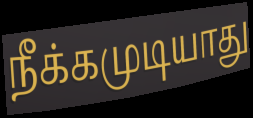
நீக்கமுடியாது